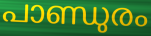
പാണ്ഡുരം